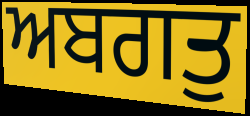
ਅਬਗਤੁ